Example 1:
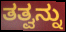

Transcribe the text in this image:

ತತ್ವನ್ನು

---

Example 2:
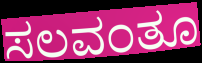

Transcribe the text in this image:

ಸಲವಂತೂ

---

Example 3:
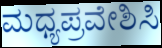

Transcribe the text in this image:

ಮಧ್ಯಪ್ರವೇಶಿಸಿ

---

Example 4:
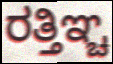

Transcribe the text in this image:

ರತ್ತಿಞ್ಚ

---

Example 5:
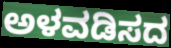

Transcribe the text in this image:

ಅಳವಡಿಸದ